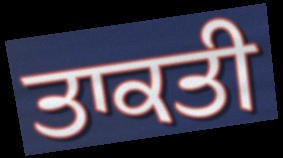
ਤਾਕਤੀ